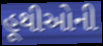
હૂથીઓની